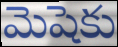
మెషెకు